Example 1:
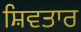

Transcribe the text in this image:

ਸ਼ਿਵਤਾਰ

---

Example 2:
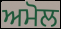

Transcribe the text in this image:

ਅਮੋਲ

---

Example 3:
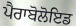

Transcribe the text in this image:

ਪੈਰਾਬੋਲੋਇਡ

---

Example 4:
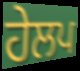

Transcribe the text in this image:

ਹੇਲਪ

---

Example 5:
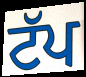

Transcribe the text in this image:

ਟੱਪ